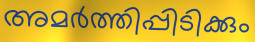
അമർത്തിപ്പിടിക്കും